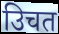
उिचत